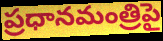
ప్రధానమంత్రిపై